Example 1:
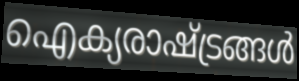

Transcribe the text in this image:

ഐക്യരാഷ്ട്രങ്ങൾ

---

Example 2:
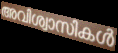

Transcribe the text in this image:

അവിശ്വാസികൾ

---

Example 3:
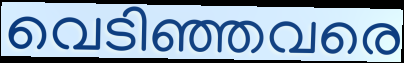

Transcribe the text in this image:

വെടിഞ്ഞവരെ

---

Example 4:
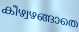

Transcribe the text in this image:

കീഴ്വഴങ്ങാതെ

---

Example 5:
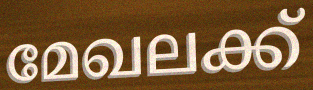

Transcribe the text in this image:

മേഖലക്ക്